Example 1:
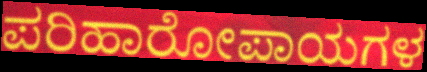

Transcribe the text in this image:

ಪರಿಹಾರೋಪಾಯಗಳ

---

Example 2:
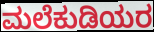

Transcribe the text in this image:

ಮಲೆಕುಡಿಯರ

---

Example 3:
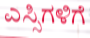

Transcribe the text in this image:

ಎಸ್ಸಿಗಳಿಗೆ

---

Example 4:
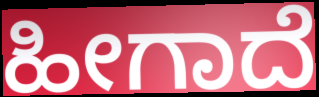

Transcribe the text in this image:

ಹೀಗಾದೆ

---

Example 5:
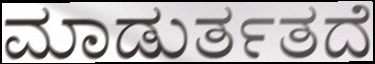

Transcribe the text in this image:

ಮಾಡುರ್ತತದೆ